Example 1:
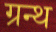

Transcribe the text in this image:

ग्रन्थ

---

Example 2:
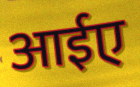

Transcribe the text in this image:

आईए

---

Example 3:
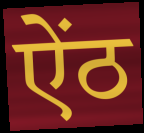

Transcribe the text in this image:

ऐंठ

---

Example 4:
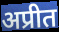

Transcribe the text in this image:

अप्रीत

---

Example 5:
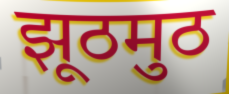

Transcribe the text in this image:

झूठमुठ